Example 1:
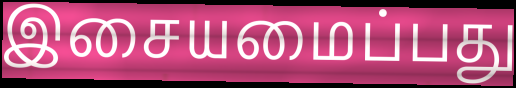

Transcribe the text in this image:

இசையமைப்பது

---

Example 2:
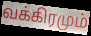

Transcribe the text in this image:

வக்கிரமும்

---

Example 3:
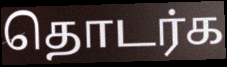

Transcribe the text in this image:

தொடர்க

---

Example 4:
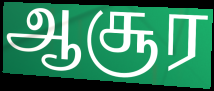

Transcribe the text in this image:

ஆசூர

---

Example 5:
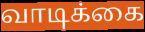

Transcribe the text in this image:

வாடிக்கை